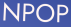
NPOP